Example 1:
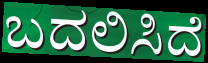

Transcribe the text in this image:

ಬದಲಿಸಿದೆ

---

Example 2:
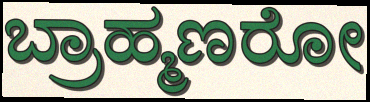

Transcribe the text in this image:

ಬ್ರಾಹ್ಮಣರೋ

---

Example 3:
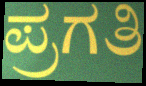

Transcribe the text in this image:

ಪ್ರಗತಿ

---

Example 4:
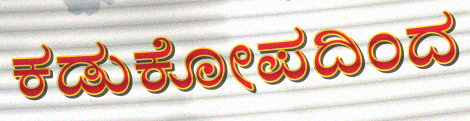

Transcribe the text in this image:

ಕಡುಕೋಪದಿಂದ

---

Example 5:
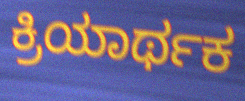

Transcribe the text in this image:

ಕ್ರಿಯಾರ್ಥಕ